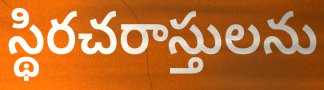
స్థిరచరాస్తులను